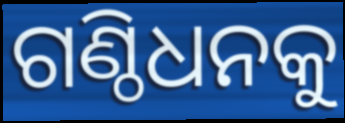
ଗଣ୍ଠିଧନକୁ